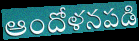
ఆందోళనపడి